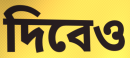
দিবেও